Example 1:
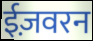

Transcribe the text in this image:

ईज़वरन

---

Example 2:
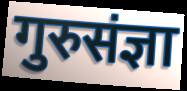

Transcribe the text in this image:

गुरुसंज्ञा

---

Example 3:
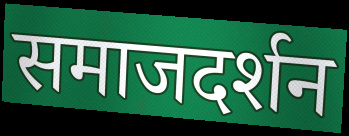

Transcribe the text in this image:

समाजदर्शन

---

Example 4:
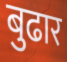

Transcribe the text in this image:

बुढार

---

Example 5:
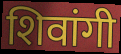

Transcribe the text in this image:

शिवांगी